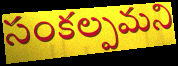
సంకల్పమని